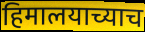
हिमालयाच्याच